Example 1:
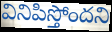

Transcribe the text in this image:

వినిపిస్తోందని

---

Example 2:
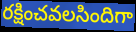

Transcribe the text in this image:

రక్షించవలసిందిగా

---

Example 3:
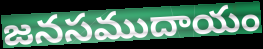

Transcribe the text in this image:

జనసముదాయం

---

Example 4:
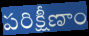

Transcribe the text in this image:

పరిక్షీణాం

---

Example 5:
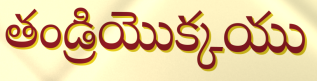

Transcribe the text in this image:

తండ్రియొక్కయు